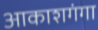
आकाशगंगा